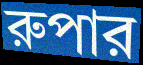
রুপার